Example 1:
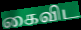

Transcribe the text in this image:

கைவிட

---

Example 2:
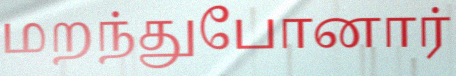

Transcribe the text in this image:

மறந்துபோனார்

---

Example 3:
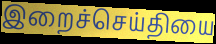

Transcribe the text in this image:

இறைச்செய்தியை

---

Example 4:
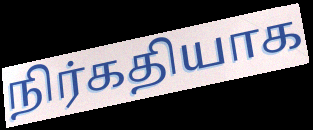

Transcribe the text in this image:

நிர்கதியாக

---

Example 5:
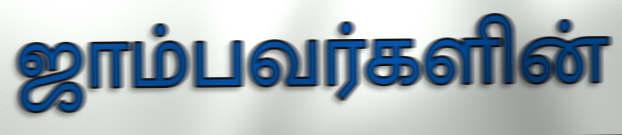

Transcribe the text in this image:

ஜாம்பவர்களின்